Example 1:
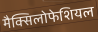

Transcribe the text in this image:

मैक्सिलोफेशियल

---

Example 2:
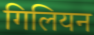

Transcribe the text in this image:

गिलियन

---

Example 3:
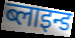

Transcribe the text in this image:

ब्लाइन्ड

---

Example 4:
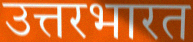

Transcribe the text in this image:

उत्तरभारत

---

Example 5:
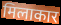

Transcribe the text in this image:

मिलाकार